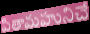
పితామహునిచే